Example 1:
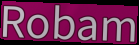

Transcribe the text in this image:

Robam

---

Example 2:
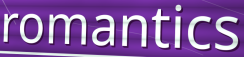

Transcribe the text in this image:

romantics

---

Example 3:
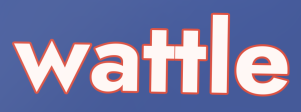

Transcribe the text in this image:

wattle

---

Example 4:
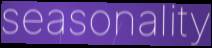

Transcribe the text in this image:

seasonality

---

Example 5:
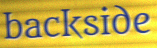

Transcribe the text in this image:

backside